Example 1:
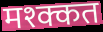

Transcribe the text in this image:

मश्क्कत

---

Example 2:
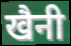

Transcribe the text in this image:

खैनी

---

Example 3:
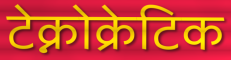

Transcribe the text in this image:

टेक्नोक्रेटिक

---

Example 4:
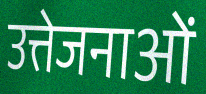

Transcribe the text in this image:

उत्तेजनाओं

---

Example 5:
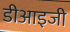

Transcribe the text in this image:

डीआइजी